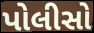
પોલીસો